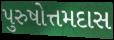
પુરુષોત્તમદાસ